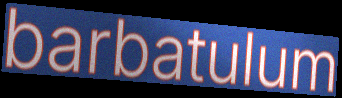
barbatulum